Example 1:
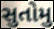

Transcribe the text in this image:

સુતોમુ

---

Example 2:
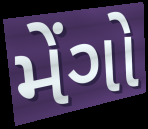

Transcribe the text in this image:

મેંગો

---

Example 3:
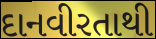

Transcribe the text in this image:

દાનવીરતાથી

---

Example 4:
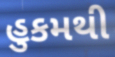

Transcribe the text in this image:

હુકમથી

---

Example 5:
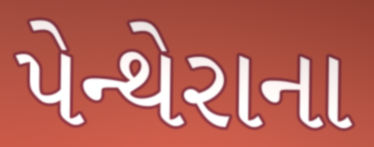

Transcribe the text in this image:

પેન્થેરાના